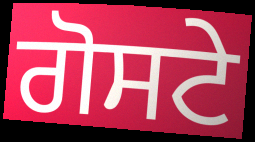
ਗੋਸਟੇ